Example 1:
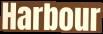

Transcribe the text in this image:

Harbour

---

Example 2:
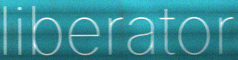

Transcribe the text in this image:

liberator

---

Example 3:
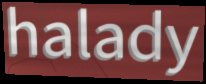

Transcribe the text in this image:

halady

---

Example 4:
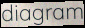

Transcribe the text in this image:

diagram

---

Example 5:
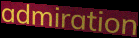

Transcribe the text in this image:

admiration